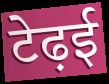
टेढ़ई